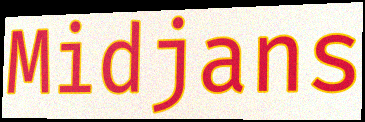
Midjans